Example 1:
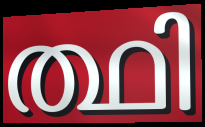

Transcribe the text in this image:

ത്ഥി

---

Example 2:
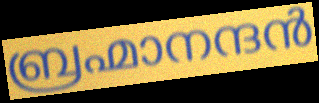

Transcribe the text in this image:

ബ്രഹ്മാനന്ദൻ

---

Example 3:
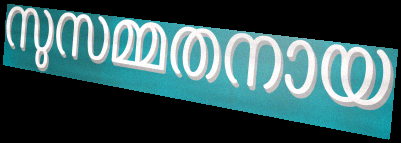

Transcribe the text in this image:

സുസമ്മതനായ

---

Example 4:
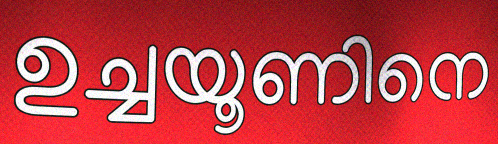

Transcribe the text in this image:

ഉച്ചയൂണിനെ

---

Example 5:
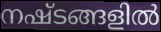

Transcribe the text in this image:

നഷ്ടങ്ങളിൽ